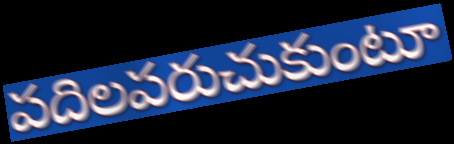
పదిలపరుచుకుంటూ